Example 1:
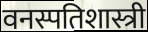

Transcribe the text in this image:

वनस्पतिशास्त्री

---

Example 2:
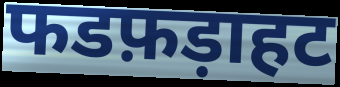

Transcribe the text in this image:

फडफ़ड़ाहट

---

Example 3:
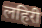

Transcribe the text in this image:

लहिरी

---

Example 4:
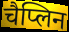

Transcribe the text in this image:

चैप्लिन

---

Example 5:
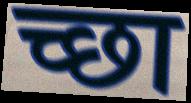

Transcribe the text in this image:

च्छा